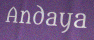
Andaya